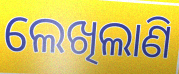
ଲେଖିଲାଣି